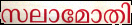
സലാമോതി